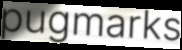
pugmarks